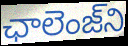
ఛాలెంజ్‌ని